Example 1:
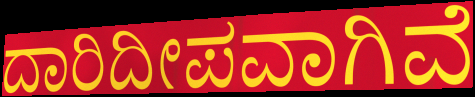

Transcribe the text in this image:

ದಾರಿದೀಪವಾಗಿವೆ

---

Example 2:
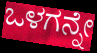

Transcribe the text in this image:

ಒಳಗನ್ನೇ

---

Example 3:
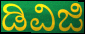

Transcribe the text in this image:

ಡಿವಿಜಿ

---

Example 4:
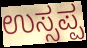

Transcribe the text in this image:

ಉಸ್ಸಪ್ಪ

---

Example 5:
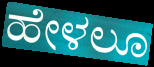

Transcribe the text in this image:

ಹೇಳಲೂ